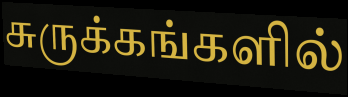
சுருக்கங்களில்